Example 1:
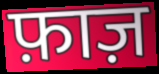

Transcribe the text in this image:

फ़ाज़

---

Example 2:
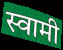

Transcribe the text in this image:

स्‍वामी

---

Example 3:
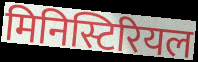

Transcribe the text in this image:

मिनिस्टिरियल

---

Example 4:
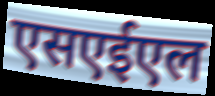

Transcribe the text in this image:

एसएईएल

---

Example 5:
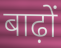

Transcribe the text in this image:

बाढ़ों